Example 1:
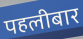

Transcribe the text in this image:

पहलीबार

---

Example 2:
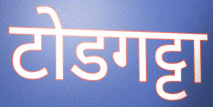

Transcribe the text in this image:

टोडगट्टा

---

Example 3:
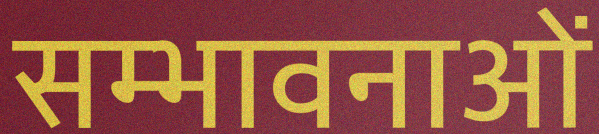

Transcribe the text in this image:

सम्भावनाओं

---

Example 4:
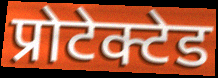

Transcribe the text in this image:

प्रोटेक्टेड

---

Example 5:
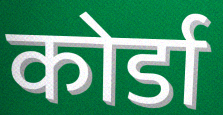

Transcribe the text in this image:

कोर्डा